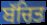
ਬੱਚਿਤ